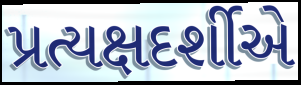
પ્રત્યક્ષદર્શીએ